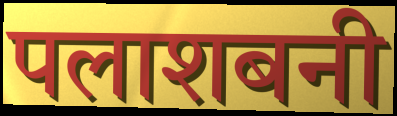
पलाशबनी